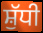
ਸ਼ੁੱਧੀ